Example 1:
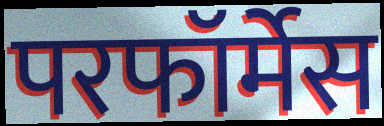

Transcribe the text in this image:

परफॉर्मेस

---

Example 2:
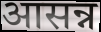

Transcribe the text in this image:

आसन्न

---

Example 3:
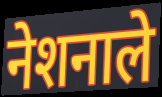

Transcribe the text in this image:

नेशनाले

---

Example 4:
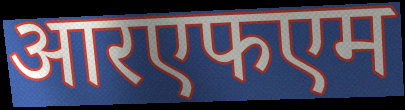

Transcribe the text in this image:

आरएफएम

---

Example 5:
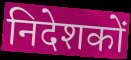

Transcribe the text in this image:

निदेशकों